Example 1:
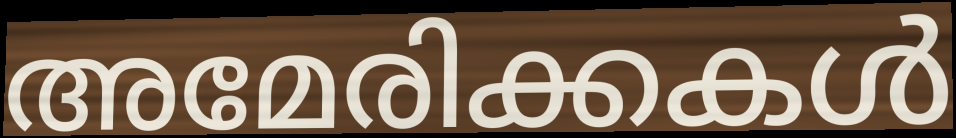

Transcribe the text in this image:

അമേരിക്കകൾ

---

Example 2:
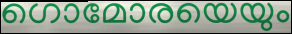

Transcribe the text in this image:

ഗൊമോരയെയും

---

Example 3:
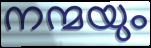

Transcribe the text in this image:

നന്മയും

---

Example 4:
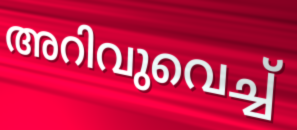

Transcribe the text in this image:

അറിവുവെച്ച്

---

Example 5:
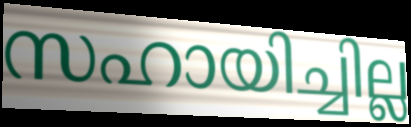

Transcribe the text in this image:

സഹായിച്ചില്ല